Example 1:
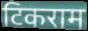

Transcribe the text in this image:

टिकराम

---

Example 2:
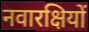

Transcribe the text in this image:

नवारक्षियों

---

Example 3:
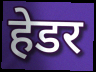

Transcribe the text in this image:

हेडर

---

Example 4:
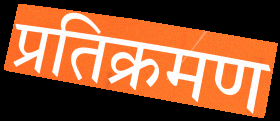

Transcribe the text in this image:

प्रतिक्रमण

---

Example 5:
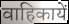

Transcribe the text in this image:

वाहिकायें